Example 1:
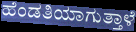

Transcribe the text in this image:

ಹೆಂಡತಿಯಾಗುತ್ತಾಳೆ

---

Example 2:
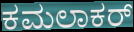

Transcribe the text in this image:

ಕಮಲಾಕರ್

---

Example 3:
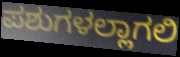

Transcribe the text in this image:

ಪಶುಗಳಲ್ಲಾಗಲಿ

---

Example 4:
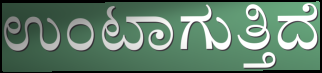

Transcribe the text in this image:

ಉಂಟಾಗುತ್ತಿದೆ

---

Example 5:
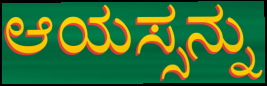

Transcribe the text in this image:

ಆಯಸ್ಸನ್ನು